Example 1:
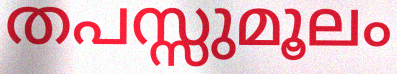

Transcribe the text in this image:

തപസ്സുമൂലം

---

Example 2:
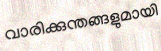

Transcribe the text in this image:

വാരിക്കുന്തങ്ങളുമായി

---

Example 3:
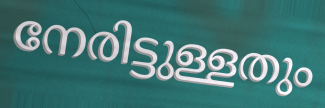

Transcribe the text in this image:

നേരിട്ടുള്ളതും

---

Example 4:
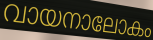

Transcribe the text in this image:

വായനാലോകം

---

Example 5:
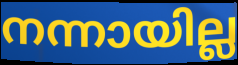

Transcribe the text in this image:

നന്നായില്ല